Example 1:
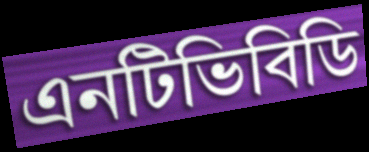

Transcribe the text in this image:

এনটিভিবিডি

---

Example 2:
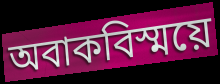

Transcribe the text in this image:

অবাকবিস্ময়ে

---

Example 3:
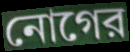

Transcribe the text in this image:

নোগের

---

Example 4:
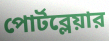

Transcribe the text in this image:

পোর্টব্লেয়ার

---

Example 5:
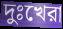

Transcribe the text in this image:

দুঃখেরা